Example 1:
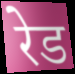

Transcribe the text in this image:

रेड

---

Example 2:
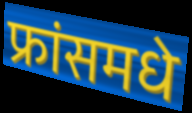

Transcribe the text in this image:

फ्रांसमधे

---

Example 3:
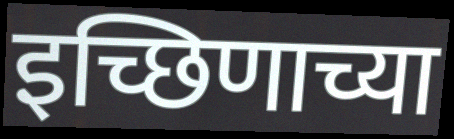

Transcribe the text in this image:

इच्छिणाच्या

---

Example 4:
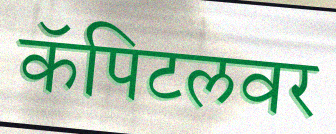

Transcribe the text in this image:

कॅपिटलवर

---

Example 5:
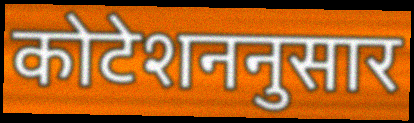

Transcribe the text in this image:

कोटेशननुसार